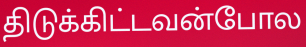
திடுக்கிட்டவன்போல